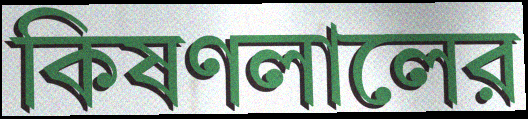
কিষণলালের